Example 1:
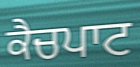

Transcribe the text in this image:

ਕੈਚਪਾਟ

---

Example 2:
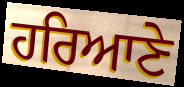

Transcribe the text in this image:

ਹਰਿਆਣੇ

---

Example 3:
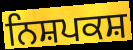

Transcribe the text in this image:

ਨਿਸ਼ਪਕਸ਼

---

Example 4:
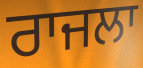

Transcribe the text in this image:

ਰਾਜਲਾ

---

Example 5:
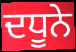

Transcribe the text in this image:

ਦਧੂਨੇ